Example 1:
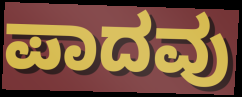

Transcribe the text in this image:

ಪಾದವು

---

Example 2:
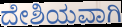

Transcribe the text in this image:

ದೇಶಿಯವಾಗಿ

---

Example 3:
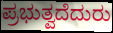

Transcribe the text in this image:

ಪ್ರಭುತ್ವದೆದುರು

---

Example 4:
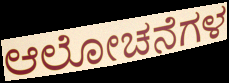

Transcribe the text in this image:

ಆಲೋಚನೆಗಳ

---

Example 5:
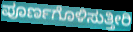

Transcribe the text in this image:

ಪೂರ್ಣಗೊಳಿಸುತ್ತೀರಿ